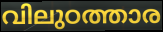
വിലുഠത്താര